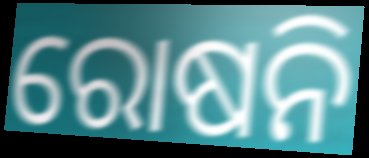
ରୋଷନି